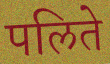
पलिते